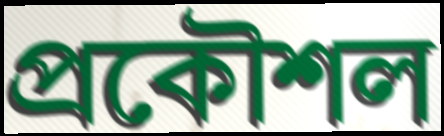
প্রকৌশল